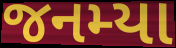
જનમ્યા